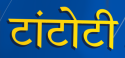
टांटोटी